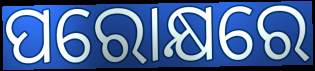
ପରୋକ୍ଷରେ